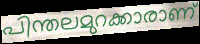
പിന്തലമുറക്കാരാണ്